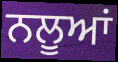
ਨਲੂਆਂ